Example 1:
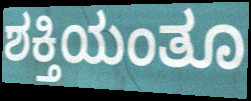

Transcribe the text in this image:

ಶಕ್ತಿಯಂತೂ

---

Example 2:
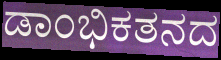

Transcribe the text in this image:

ಡಾಂಭಿಕತನದ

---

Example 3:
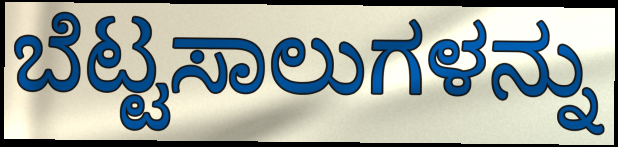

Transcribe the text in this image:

ಬೆಟ್ಟಸಾಲುಗಳನ್ನು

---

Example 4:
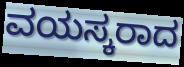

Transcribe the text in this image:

ವಯಸ್ಕರಾದ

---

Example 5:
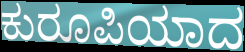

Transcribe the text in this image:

ಕುರೂಪಿಯಾದ